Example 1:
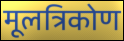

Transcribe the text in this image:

मूलत्रिकोण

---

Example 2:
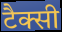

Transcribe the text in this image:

टैक्‍सी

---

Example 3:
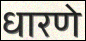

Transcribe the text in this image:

धारणे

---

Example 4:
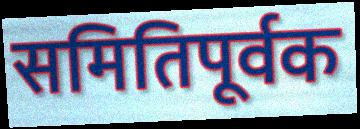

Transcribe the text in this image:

समितिपूर्वक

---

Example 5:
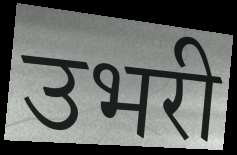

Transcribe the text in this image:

उभरी